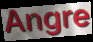
Angre